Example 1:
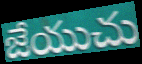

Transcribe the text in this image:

జేయుచు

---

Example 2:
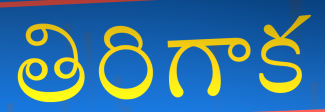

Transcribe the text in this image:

తిరిగాక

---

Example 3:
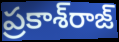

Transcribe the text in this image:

ప్రకాశ్‌రాజ్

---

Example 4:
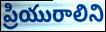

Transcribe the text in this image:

ప్రియురాలిని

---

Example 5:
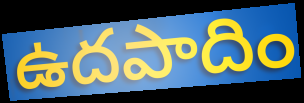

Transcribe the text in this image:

ఉదపాదిం